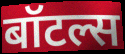
बॉटल्स